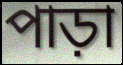
পাড়া